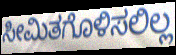
ಸೀಮಿತಗೊಳಿಸಲಿಲ್ಲ